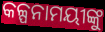
କଳ୍ପନାମୟୀଙ୍କୁ